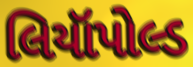
લિયૉપોલ્ડ